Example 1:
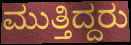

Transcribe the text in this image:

ಮುತ್ತಿದ್ದರು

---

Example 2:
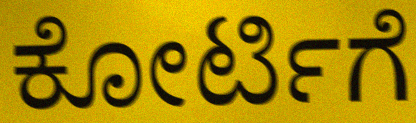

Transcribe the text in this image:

ಕೋರ್ಟಿಗೆ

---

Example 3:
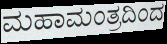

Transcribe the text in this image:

ಮಹಾಮಂತ್ರದಿಂದ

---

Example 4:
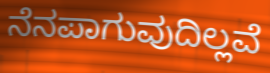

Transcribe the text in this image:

ನೆನಪಾಗುವುದಿಲ್ಲವೆ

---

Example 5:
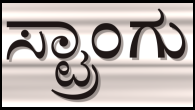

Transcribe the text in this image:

ಸ್ಟ್ರಾಂಗು